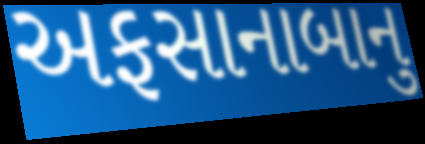
અફસાનાબાનુ